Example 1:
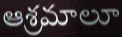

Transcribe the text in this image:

ఆశ్రమాలూ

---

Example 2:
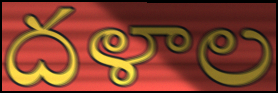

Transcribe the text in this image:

దళాల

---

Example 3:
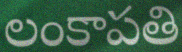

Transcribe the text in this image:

లంకాపతి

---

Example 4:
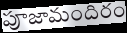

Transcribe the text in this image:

పూజామందిరం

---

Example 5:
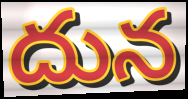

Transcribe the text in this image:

దున